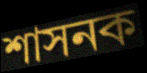
শাসনক